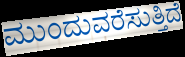
ಮುಂದುವರೆಸುತ್ತಿದೆ